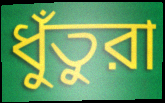
ধুঁতুরা